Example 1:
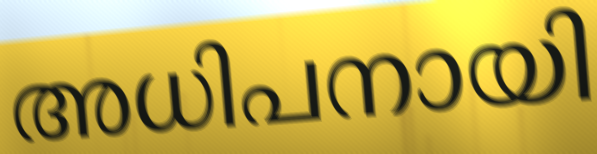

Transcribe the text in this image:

അധിപനായി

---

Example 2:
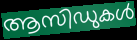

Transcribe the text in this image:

ആസിഡുകൾ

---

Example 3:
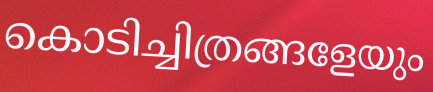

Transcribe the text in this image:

കൊടിച്ചിത്രങ്ങളേയും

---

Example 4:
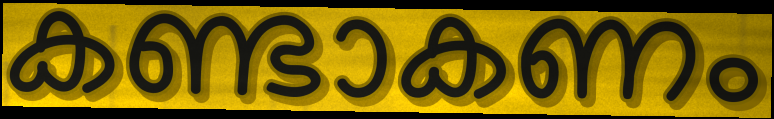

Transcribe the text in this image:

കണ്ടാകണം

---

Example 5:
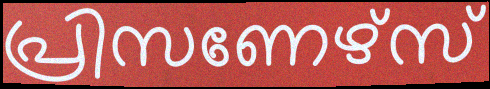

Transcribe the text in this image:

പ്രിസണേഴ്സ്